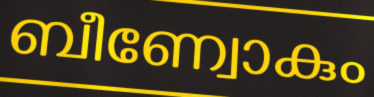
ബീണ്വോകും